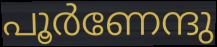
പൂർണേന്ദു